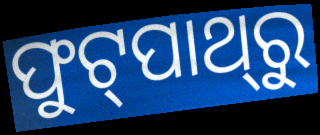
ଫୁଟ୍‌ପାଥ୍‌ରୁ